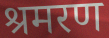
श्रमरण